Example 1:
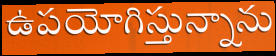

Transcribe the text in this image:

ఉపయోగిస్తున్నాను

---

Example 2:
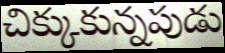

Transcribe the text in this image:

చిక్కుకున్నపుడు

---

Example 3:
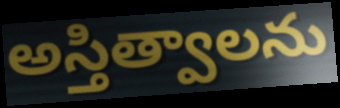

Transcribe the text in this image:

అస్తిత్వాలను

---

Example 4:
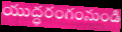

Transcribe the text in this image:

యుద్ధరంగంనుండి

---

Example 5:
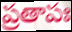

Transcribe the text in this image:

ప్రతాపః